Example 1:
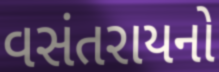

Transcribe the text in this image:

વસંતરાયનો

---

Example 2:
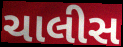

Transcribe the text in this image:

ચાલીસ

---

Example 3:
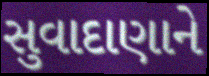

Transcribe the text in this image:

સુવાદાણાને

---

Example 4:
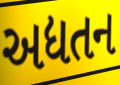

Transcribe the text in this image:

અદ્યતન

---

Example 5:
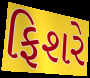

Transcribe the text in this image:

ફિશરે